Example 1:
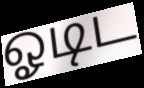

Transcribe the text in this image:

ஓடிட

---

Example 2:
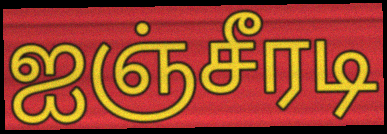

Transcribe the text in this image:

ஐஞ்சீரடி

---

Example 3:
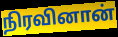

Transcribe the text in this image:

நிரவினான்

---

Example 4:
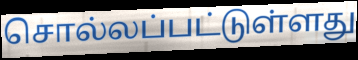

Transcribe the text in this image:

சொல்லப்பட்டுள்ளது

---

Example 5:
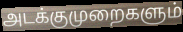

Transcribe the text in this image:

அடக்குமுறைகளும்